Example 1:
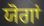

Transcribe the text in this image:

ਯੋਗਾਂ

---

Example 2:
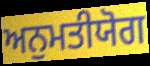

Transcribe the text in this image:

ਅਨੁਮਤੀਯੋਗ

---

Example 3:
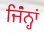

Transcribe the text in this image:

ਜਿੰਂਨ੍ਹਾਂ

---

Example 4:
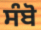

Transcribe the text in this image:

ਸੰਬੋ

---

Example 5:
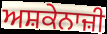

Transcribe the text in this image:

ਅਸ਼ਕੇਨਾਜ਼ੀ